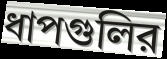
ধাপগুলির